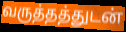
வருத்தத்துடன்